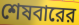
শেষবারের